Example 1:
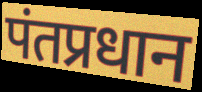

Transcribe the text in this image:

पंतप्रधान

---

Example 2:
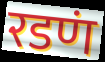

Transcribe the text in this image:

रडणं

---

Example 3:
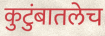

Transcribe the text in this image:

कुटुंबातलेच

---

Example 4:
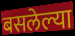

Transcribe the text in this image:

बसलेल्या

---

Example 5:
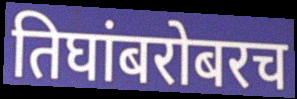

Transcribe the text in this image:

तिघांबरोबरच